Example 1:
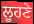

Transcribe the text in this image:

ਲੂਹਣੇ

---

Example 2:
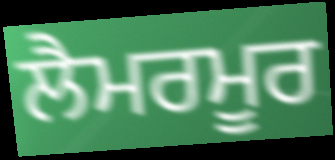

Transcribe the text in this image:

ਲੈਮਰਮੂਰ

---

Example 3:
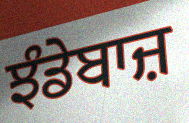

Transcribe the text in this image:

ਝੰਡੇਬਾਜ਼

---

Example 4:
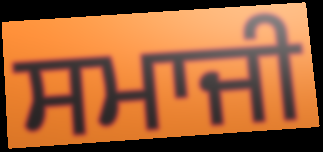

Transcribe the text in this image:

ਸਮਾਜੀ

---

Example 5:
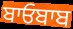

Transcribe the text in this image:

ਬਾਓਬਾਬ